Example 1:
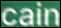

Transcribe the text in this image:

cain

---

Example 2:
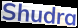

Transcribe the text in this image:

Shudra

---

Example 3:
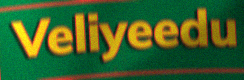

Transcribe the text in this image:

Veliyeedu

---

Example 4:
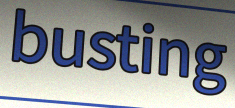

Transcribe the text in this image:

busting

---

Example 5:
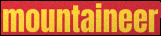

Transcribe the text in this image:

mountaineer